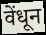
वेंधून